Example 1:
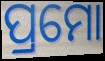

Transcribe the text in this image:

ପ୍ରମୋ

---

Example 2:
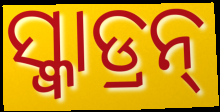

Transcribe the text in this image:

ସ୍କ୍ୱାଡ୍ରନ୍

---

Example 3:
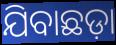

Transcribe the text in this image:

ଯିବାଛଡ଼ା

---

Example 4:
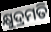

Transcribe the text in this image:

କ୍ଷୁଦ୍ରମତି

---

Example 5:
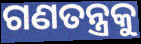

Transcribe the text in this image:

ଗଣତନ୍ତ୍ରକୁ